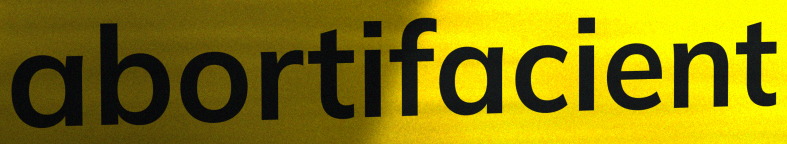
abortifacient